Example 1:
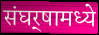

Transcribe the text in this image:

संघर्षामध्ये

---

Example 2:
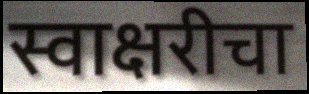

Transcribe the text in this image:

स्वाक्षरीचा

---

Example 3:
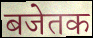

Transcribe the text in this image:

बजेतक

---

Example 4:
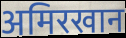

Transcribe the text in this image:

अमिरखान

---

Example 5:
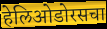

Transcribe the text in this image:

हेलिओडोरसचा